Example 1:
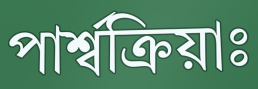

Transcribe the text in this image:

পাৰ্শ্বক্ৰিয়াঃ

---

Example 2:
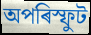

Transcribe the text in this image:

অপৰিস্ফুট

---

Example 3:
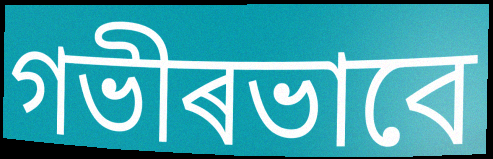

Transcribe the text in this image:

গভীৰভাবে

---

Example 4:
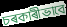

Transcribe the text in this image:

চৰকাৰীভাবে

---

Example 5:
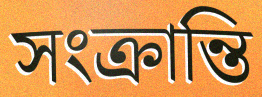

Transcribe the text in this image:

সংক্ৰান্তি